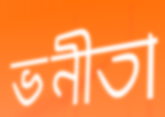
ভনীতা